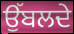
ਉੱਬਲਦੇ